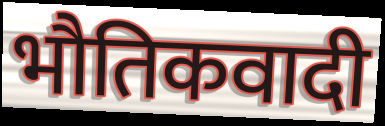
भौतिकवादी